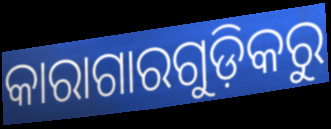
କାରାଗାରଗୁଡ଼ିକରୁ